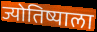
ज्योतिष्याला